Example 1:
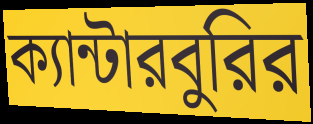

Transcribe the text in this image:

ক্যান্টারবুরির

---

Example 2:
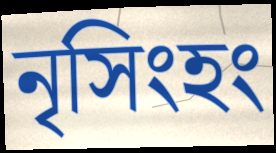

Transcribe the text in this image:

নৃসিংহং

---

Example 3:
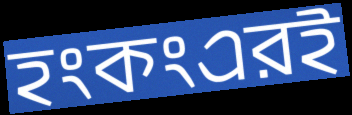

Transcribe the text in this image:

হংকংএরই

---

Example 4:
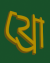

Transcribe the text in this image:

থ্রো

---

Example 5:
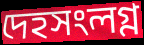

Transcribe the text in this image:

দেহসংলগ্ন